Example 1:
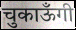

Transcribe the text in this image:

चुकाऊँगी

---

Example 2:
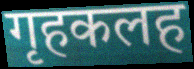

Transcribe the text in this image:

गृहकलह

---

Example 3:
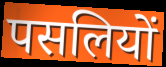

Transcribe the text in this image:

पसलियों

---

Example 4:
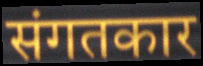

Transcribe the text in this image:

संगतकार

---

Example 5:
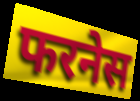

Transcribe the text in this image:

फरनेस